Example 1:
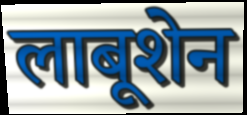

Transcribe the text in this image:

लाबूशेन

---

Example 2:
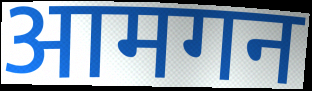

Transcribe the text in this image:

आमगन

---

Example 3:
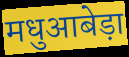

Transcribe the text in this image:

मधुआबेड़ा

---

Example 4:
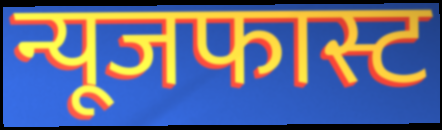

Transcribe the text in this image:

न्यूजफास्ट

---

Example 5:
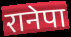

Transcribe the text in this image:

रानेपा